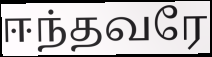
ஈந்தவரே